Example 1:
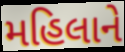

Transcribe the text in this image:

મહિલાને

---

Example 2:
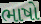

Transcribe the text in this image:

ભાષો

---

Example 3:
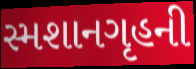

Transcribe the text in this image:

સ્મશાનગૃહની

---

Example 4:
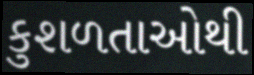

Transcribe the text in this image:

કુશળતાઓથી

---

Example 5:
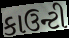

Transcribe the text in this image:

કાઉન્ટી